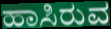
ಹಾಸಿರುವ